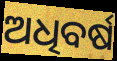
ଅଧିବର୍ଷ